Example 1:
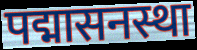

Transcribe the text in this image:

पद्मासनस्था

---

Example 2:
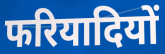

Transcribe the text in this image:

फरियादियों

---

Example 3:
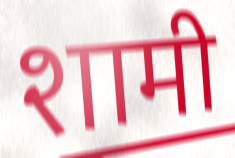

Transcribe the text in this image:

शामी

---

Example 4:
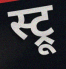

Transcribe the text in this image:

स्ट्रू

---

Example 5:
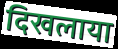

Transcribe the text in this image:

दिखलाया